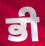
ਭੀ